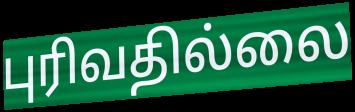
புரிவதில்லை